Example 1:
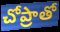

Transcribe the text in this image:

చోప్రాతో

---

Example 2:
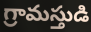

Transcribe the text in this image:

గ్రామస్తుడి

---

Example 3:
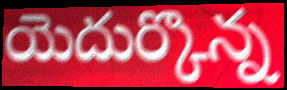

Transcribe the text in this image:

యెదుర్కొన్న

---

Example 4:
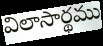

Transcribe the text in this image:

విలాసార్థము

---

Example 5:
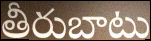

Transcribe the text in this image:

తీరుబాటు